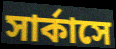
সার্কাসে